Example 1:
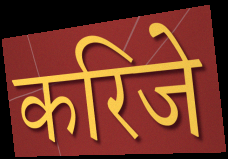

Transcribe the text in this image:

करिजे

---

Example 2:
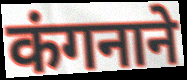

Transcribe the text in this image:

कंगनाने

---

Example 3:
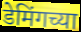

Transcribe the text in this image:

डेमिंगच्या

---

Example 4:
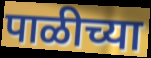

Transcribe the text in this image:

पाळीच्या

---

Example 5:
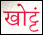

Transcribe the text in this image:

खोट्टं